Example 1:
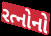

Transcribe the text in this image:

રત્નોનો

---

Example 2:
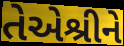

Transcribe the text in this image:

તેએશ્રીને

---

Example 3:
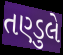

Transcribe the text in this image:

તણ્ડુલે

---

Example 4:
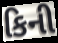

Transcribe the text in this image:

કિની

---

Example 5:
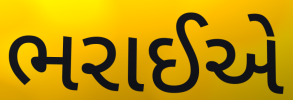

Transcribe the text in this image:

ભરાઈએ